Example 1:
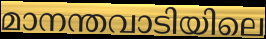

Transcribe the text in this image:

മാനന്തവാടിയിലെ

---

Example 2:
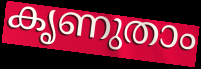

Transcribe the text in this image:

കൃണുതാം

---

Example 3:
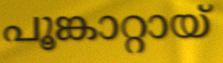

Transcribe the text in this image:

പൂങ്കാറ്റായ്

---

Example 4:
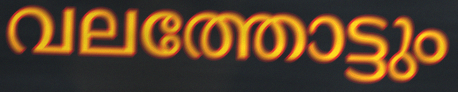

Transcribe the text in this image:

വലത്തോട്ടും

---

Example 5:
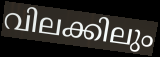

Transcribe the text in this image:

വിലക്കിലും